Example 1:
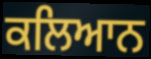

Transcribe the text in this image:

ਕਲਿਆਨ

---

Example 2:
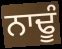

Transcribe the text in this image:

ਨਾਢੂੰ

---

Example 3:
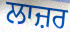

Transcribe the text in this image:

ਲਾਜ਼ਰ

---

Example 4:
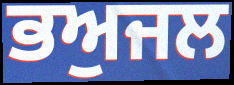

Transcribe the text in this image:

ਭਅੁਜਲ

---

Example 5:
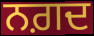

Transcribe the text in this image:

ਨਗ਼ਦ